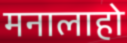
मनालाहो